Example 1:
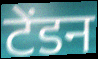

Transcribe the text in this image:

टेंडन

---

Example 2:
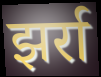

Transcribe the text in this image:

झर्रा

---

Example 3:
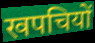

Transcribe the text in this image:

खपचियों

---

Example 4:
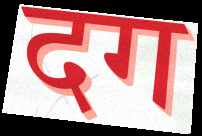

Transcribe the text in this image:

दग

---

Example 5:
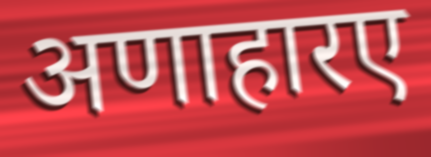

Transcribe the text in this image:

अणाहारए